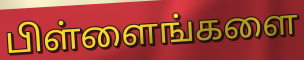
பிள்ளைங்களை